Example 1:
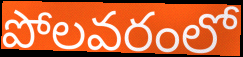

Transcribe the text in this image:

పోలవరంలో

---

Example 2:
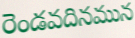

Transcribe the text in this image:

రెండవదినమున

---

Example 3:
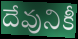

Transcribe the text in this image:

దేవునికీ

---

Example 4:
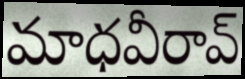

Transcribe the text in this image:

మాధవీరావ్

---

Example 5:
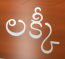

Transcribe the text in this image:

లక్కీ